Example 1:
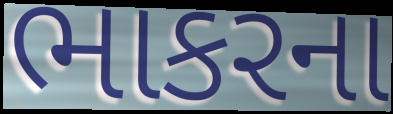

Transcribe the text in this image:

ભાકરના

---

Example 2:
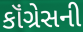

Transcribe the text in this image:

કૉંગ્રેસની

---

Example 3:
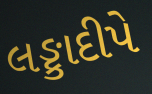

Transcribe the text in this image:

લઙ્કાદીપે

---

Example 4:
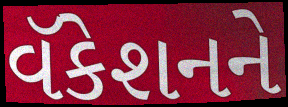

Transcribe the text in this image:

વૅકેશનને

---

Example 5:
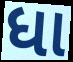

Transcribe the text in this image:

ધા